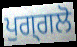
ਪੁਗ੍ਗਲੋ